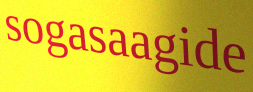
sogasaagide